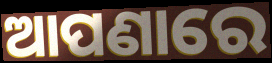
ଆପଣାରେ